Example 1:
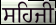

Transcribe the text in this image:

ਸਹਿਜੀ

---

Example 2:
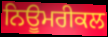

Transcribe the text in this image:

ਨਿਊਮਰੀਕਲ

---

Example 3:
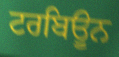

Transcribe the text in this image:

ਟਰਬਿਊਨ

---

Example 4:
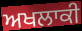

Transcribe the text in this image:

ਅਖਲਾਕੀ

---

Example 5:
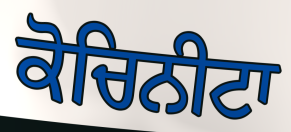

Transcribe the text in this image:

ਕੋਚਿਨੀਟਾ